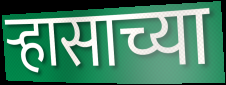
ऱ्हासाच्या